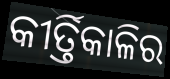
କୀର୍ତ୍ତିକାଳିର